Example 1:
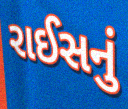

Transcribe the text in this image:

રાઈસનું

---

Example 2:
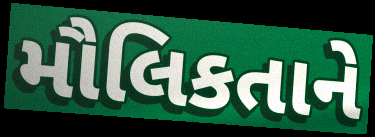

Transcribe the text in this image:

મૌલિકતાને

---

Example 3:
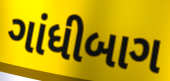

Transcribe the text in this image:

ગાંધીબાગ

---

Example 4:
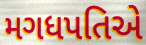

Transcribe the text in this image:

મગધપતિએ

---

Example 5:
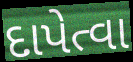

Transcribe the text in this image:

દાપેત્વા